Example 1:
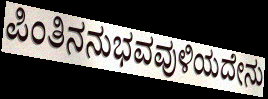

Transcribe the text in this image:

ಪಿಂತಿನನುಭವವುಳಿಯದೇನು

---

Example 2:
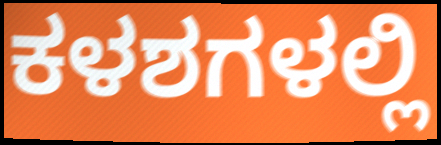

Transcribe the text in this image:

ಕಳಶಗಳಲ್ಲಿ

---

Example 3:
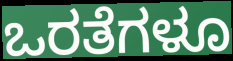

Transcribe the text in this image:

ಒರತೆಗಳೂ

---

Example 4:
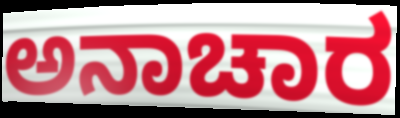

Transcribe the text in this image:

ಅನಾಚಾರ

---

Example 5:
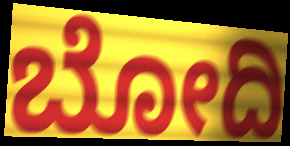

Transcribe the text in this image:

ಬೋದಿ